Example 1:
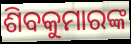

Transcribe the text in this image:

ଶିବକୁମାରଙ୍କ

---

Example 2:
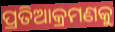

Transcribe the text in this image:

ପ୍ରତିଆକ୍ରମଣକୁ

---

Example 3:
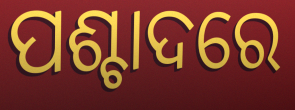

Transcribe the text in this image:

ପଶ୍ଚାଦରେ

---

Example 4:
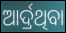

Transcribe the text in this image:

ଆର୍ଦ୍ରଥିବା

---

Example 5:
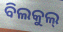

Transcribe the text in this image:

ବିଲକୁଲ୍